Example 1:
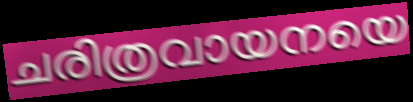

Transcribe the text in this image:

ചരിത്രവായനയെ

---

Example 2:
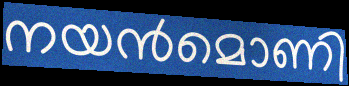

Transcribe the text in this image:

നയൻമൊണി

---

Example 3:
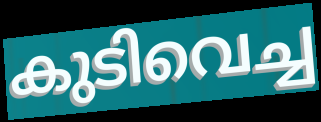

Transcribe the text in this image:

കുടിവെച്ച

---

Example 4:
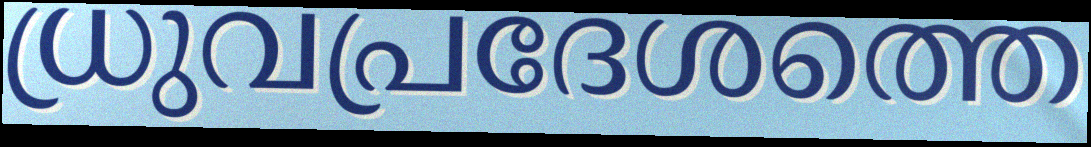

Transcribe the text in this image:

ധ്രുവപ്രദേശത്തെ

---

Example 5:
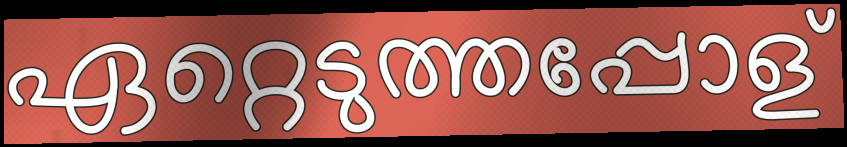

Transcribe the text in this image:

ഏറ്റെടുത്തപ്പോള്